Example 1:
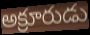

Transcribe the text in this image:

అక్రూరుడు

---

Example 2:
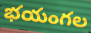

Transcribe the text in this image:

భయంగల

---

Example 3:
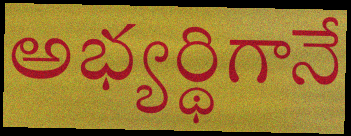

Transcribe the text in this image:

అభ్యర్థిగానే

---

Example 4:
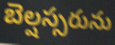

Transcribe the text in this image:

బెల్షస్సరును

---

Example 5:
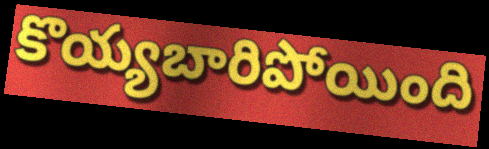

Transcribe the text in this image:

కొయ్యబారిపోయింది